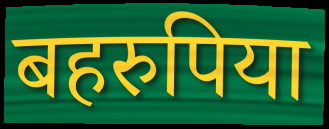
बहरुपिया